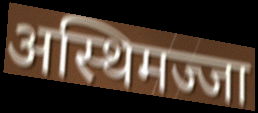
अस्थिमज्जा